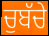
ਚੁਬੱਚੇ